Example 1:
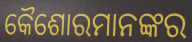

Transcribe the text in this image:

କୈଶୋରମାନଙ୍କର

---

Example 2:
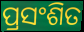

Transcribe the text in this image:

ପ୍ରସଂଶିତ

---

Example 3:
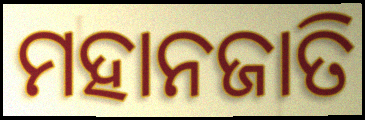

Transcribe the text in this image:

ମହାନଜାତି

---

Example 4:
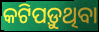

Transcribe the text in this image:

କଟିପଡ଼ୁଥିବା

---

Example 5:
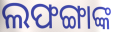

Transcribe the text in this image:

ଲଫଙ୍ଗାଙ୍କ